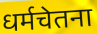
धर्मचेतना